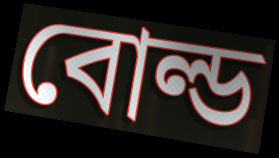
বোল্ড